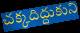
చక్కదిద్దుకుని